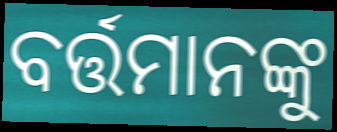
ବର୍ତ୍ତମାନଙ୍କୁ